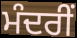
ਮੰਦਰੀਂ